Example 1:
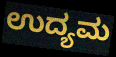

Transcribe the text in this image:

ಉದ್ಯಮ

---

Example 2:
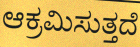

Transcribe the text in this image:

ಆಕ್ರಮಿಸುತ್ತದೆ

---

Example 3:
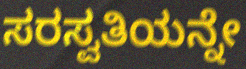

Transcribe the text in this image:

ಸರಸ್ವತಿಯನ್ನೇ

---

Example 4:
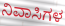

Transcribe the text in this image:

ನಿವಾಸಿಗಳ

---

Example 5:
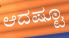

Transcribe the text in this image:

ಆದಷ್ಟೂ